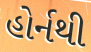
હોર્નથી